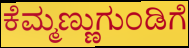
ಕೆಮ್ಮಣ್ಣುಗುಂಡಿಗೆ